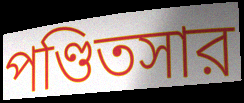
পণ্ডিতসার